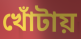
খোঁটায়